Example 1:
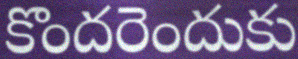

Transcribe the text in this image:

కొందరెందుకు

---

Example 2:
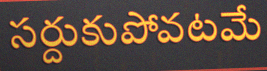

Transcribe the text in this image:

సర్దుకుపోవటమే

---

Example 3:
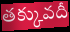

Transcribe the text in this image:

తక్కువదీ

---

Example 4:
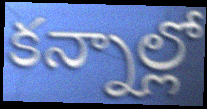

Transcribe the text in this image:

కన్నాల్లో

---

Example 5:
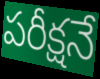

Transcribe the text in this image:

పరీక్షనే